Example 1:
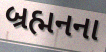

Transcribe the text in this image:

બ્રહ્મનના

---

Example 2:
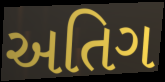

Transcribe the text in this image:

અતિગ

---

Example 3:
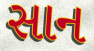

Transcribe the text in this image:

સાન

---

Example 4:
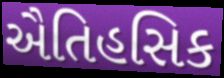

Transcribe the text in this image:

ઐતિહસિક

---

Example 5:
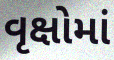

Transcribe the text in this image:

વૃક્ષોમાં